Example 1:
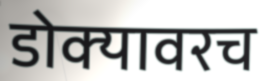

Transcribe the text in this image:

डोक्यावरच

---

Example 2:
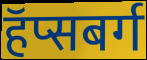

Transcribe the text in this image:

हॅप्सबर्ग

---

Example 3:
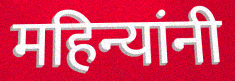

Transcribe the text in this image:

महिन्यांनी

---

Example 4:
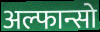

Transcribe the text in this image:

अल्फान्सो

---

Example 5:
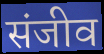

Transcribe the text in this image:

संजीव